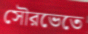
সৌরভেতে